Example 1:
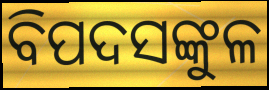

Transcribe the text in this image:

ବିପଦସଙ୍କୁଳ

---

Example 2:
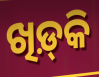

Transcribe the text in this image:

ଖିଡ଼୍‌କି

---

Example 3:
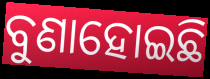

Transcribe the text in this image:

ବୁଣାହୋଇଛି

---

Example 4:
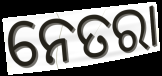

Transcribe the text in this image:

ନେତରା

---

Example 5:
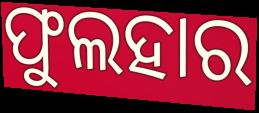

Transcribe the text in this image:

ଫୁଲହାର